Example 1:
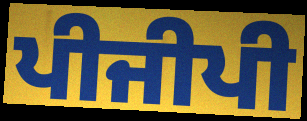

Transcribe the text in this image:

ਪੀਜੀਪੀ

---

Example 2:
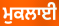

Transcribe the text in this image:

ਮੁਕਲਾਈ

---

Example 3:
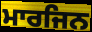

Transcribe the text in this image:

ਮਾਰਜਿਨ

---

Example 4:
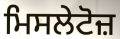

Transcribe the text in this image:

ਮਿਸਲੇਟੋਜ਼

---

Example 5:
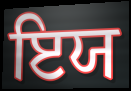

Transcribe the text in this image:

ਇਯ